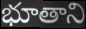
భూతాని